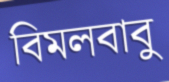
বিমলবাবু